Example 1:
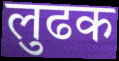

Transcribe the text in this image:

लुढक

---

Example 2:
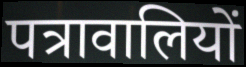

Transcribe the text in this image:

पत्रावालियों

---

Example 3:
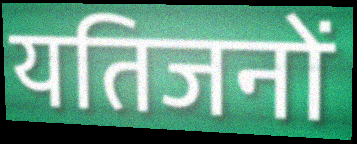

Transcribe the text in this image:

यतिजनों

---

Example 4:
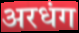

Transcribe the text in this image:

अरधंग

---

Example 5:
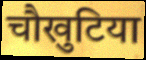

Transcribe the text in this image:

चौखुटिया